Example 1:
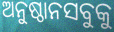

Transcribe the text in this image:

ଅନୁଷ୍ଠାନସବୁକୁ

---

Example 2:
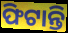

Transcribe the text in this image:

ଫିଟାନ୍ତି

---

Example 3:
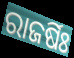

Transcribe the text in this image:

ରାଜର୍ଷିଃ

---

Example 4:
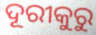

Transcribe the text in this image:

ଦୂରୀକୁରୁ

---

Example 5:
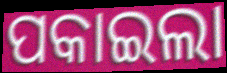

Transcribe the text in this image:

ପକାଇଲା